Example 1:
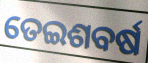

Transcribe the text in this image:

ତେଇଶବର୍ଷ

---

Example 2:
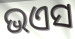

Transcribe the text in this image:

ଭଏସ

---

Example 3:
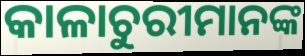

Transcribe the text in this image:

କାଳାଚୁରୀମାନଙ୍କ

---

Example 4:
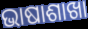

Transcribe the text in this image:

ଭାଷାଶାଖା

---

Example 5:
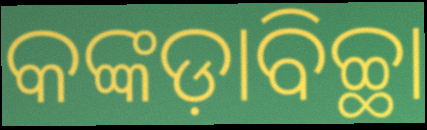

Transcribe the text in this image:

କଙ୍କଡ଼ାବିଚ୍ଛା